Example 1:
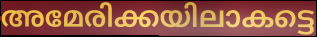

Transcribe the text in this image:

അമേരിക്കയിലാകട്ടെ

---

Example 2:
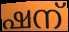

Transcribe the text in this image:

ഷന്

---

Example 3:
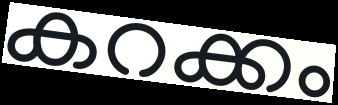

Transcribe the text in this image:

കറക്കം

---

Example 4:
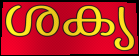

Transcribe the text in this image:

ശക്യ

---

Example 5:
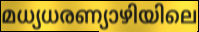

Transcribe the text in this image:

മധ്യധരണ്യാഴിയിലെ